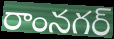
రాంనగర్